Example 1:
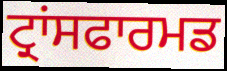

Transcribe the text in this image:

ਟ੍ਰਾਂਸਫਾਰਮਡ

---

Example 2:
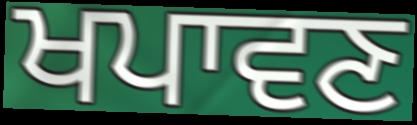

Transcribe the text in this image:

ਖਪਾਵਣ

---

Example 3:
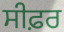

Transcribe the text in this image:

ਸੀਫ਼ਰ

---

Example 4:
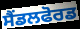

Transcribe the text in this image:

ਸੈਂਡਲਫੋਰਡ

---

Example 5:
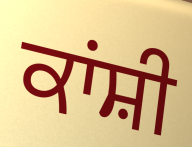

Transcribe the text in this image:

ਕਾਂਸ਼ੀ